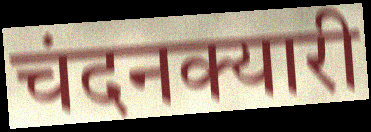
चंदनक्यारी